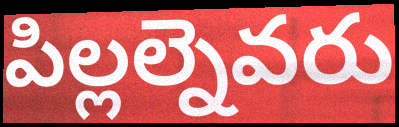
పిల్లల్నెవరు